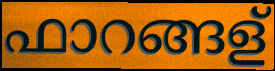
ഫാറങ്ങള്